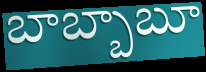
బాబ్బాబూ